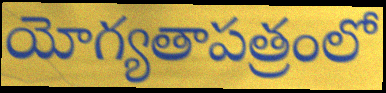
యోగ్యతాపత్రంలో